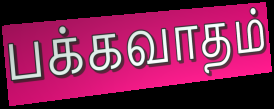
பக்கவாதம்